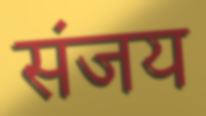
संजय